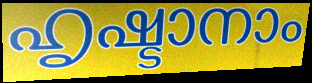
ഹൃഷ്ടാനാം